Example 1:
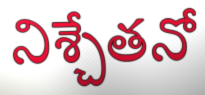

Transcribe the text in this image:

నిశ్చేతనో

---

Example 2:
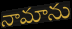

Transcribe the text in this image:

నామాను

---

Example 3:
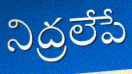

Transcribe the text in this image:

నిద్రలేపే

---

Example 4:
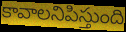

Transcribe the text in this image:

కావాలనిపిస్తుంది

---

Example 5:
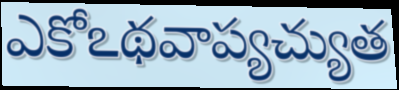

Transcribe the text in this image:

ఎకోఽథవాప్యచ్యుత